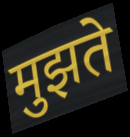
मुझते